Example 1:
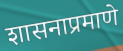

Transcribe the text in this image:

शासनाप्रमाणे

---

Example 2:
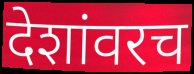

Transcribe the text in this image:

देशांवरच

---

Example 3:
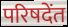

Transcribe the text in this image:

परिषदेंत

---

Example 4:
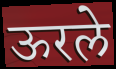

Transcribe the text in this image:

ऊरले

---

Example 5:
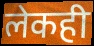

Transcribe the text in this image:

लेकही